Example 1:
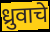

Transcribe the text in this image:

ध्रुवाचे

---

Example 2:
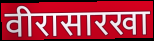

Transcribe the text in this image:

वीरासारखा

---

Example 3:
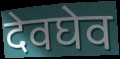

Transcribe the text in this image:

देवघेव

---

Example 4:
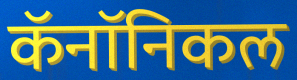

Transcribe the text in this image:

कॅनॉनिकल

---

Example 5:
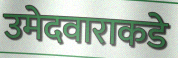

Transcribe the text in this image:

उमेदवाराकडे